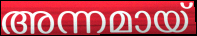
അന്നമായ്